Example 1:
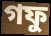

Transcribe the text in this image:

গফু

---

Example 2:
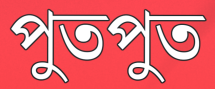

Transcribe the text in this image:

পুতপুত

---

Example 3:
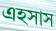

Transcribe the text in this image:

এহসাস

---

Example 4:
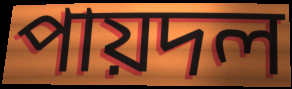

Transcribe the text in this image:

পায়দল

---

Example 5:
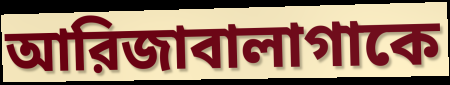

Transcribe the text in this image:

আরিজাবালাগাকে